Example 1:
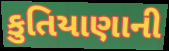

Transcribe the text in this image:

કુતિયાણાની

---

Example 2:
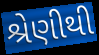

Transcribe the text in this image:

શ્રેણીથી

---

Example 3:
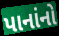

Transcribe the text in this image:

પાનાંનો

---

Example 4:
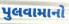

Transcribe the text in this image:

પુલવામાનો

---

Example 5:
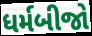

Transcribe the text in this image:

ધર્મબીજો